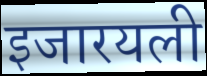
इजारयली